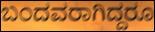
ಬಂದವರಾಗಿದ್ದರೂ